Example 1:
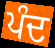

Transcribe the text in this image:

ਪੰਦ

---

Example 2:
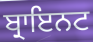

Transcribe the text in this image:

ਬ੍ਰਾਇਨਟ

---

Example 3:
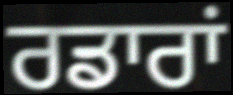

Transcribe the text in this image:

ਰਡਾਰਾਂ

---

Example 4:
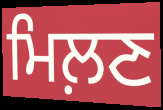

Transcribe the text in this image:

ਮਿਲ਼ਣ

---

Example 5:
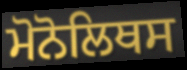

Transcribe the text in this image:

ਮੋਨੋਲਿਥਸ